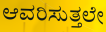
ಆವರಿಸುತ್ತಲೇ